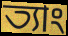
ত্যাং